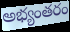
అభ్యంతరం